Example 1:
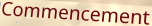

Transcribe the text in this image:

Commencement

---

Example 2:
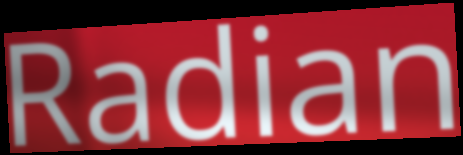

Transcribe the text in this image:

Radian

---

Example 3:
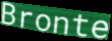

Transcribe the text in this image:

Bronte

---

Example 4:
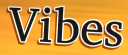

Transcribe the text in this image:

Vibes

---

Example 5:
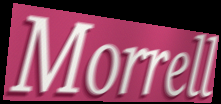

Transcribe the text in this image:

Morrell